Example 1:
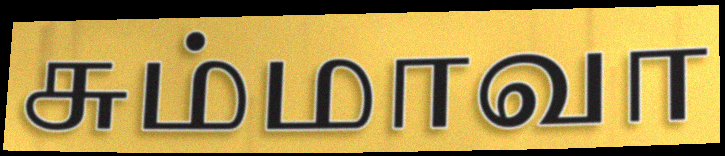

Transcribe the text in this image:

சும்மாவா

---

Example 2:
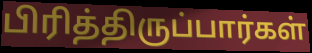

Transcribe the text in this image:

பிரித்திருப்பார்கள்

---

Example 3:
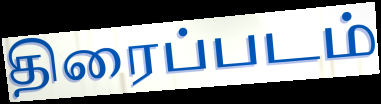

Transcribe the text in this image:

திரைப்படம்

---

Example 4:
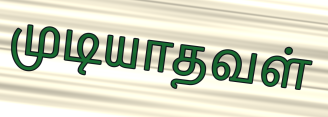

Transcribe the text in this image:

முடியாதவள்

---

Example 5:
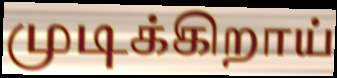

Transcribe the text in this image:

முடிக்கிறாய்